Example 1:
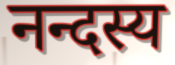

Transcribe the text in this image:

नन्दस्य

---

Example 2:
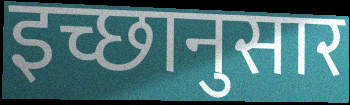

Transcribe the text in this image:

इच्‍छानुसार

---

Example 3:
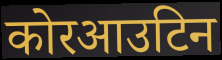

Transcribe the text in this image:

कोरआउटिन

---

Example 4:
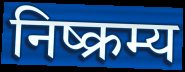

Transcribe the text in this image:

निष्क्रम्य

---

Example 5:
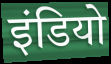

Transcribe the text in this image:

इंडियो